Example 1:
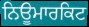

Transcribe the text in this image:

ਨਿਊਮਾਰਕਿਟ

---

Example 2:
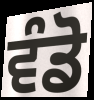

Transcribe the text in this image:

ਵੰਡੋ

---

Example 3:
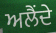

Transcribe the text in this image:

ਅਲੈਂਦੇ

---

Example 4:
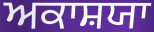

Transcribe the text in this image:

ਅਕਾਸ਼ਯਾ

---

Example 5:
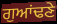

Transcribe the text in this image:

ਗੁਆਂਢਣੇ